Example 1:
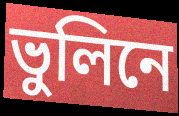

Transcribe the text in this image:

ভুলিনে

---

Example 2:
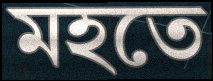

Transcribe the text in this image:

মহতে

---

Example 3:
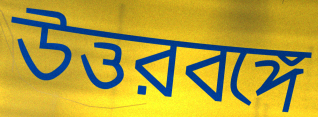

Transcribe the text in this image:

উত্তরবঙ্গে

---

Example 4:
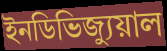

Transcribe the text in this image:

ইনডিভিজ্যুয়াল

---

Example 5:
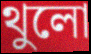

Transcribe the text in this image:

থুলো